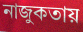
নাজুকতায়